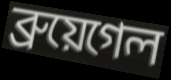
ব্রুয়েগেল